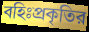
বহিঃপ্রকৃতির